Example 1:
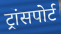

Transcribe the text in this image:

ट्रांसपोर्ट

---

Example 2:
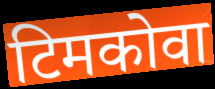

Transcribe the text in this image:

टिमकोवा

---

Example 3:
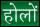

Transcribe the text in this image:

होलों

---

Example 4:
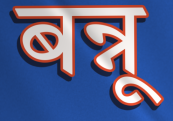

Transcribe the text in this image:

बन्नू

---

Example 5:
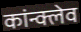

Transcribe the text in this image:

कांन्क्लेव